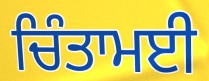
ਚਿੰਤਾਮਈ